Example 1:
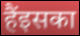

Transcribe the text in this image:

हैंइसका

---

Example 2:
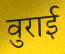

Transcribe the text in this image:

वुराई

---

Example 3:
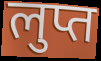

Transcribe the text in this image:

लुप्‍त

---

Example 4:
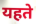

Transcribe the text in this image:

यहते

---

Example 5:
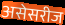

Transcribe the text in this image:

असेसरीज